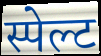
स्पेल्ट